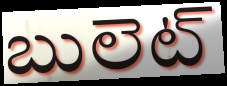
బులెట్